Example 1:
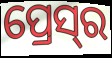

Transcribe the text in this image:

ପ୍ରେସ୍‌ର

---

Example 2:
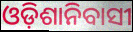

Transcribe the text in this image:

ଓଡ଼ିଶାନିବାସୀ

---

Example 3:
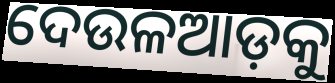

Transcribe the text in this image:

ଦେଉଳଆଡ଼କୁ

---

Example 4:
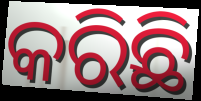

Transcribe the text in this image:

କରିଛି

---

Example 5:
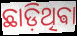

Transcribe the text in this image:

ଛାଡ଼ିଥିଵା